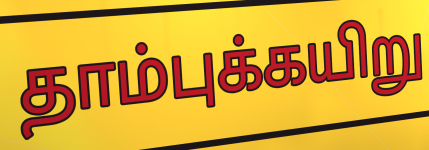
தாம்புக்கயிறு